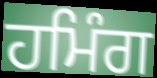
ਹਮਿੰਗ